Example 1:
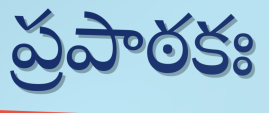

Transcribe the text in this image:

ప్రపాఠకః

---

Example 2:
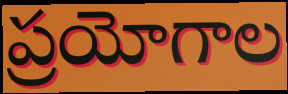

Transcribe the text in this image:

ప్రయోగాల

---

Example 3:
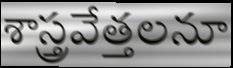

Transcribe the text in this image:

శాస్త్రవేత్తలనూ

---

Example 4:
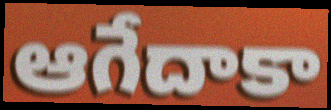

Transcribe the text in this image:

ఆగేదాకా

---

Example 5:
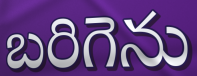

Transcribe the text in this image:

బరిగెను